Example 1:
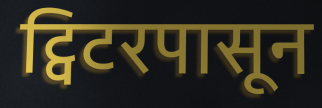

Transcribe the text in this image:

ट्विटरपासून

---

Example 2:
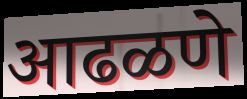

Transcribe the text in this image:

आढळणे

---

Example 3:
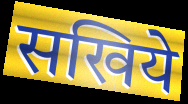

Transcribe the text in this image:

सखिये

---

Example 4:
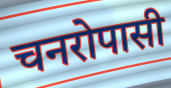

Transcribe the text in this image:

चनरोपासी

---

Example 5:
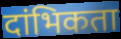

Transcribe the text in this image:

दांभिकता